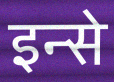
इन्से